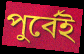
পুৰ্বেই